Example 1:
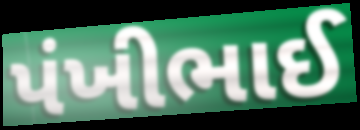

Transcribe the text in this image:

પંખીભાઈ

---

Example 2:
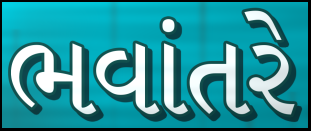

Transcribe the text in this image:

ભવાંતરે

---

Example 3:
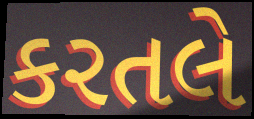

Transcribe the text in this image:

કરતલે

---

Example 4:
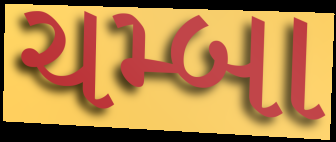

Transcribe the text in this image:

ચમ્બા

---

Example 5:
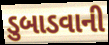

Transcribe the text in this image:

ડુબાડવાની